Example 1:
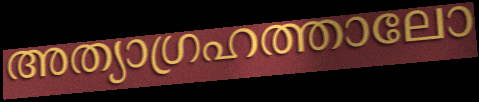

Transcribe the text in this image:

അത്യാഗ്രഹത്താലോ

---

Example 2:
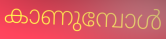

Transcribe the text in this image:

കാണുമ്പോൾ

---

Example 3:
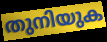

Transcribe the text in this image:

തുനിയുക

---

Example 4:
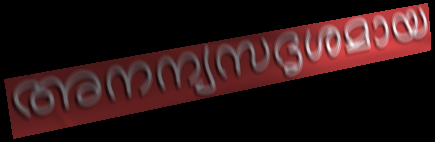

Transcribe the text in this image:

അനന്യസദൃശമായ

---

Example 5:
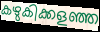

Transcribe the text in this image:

കഴുകിക്കളഞ്ഞ